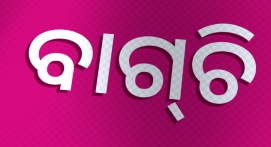
ବାଗ୍‌ଚି